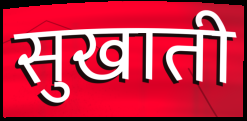
सुखाती